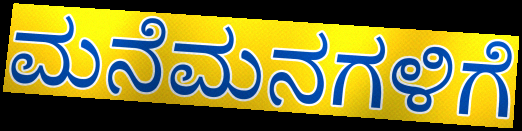
ಮನೆಮನಗಳಿಗೆ